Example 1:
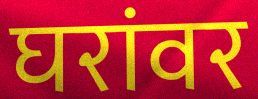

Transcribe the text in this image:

घरांवर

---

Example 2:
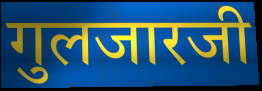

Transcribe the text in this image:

गुलजारजी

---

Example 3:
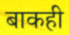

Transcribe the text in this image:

बाकही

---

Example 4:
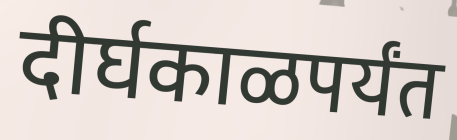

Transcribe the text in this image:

दीर्घकाळपर्यंत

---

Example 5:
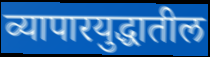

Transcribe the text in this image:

व्यापारयुद्धातील